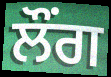
ਲੌਂਗ